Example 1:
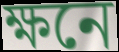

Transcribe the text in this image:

ক্ষনে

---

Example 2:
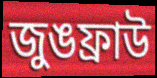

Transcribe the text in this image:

জুঙফ্রাউ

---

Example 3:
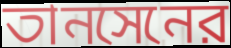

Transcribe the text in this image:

তানসেনের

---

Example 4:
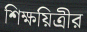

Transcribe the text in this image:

শিক্ষয়িত্রীর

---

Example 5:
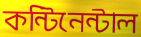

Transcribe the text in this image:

কন্টিনেন্টাল